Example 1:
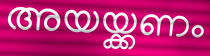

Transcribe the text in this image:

അയയ്ക്കണം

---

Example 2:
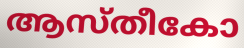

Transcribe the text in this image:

ആസ്തീകോ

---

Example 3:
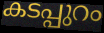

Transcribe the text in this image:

കടപ്പുറം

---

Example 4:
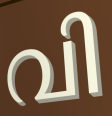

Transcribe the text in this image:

വി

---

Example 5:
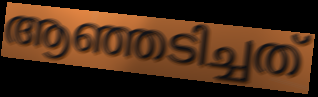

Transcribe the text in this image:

ആഞ്ഞടിച്ചത്